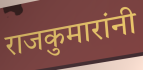
राजकुमारांनी